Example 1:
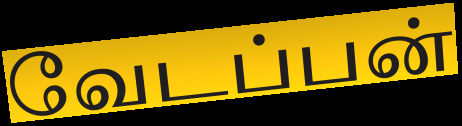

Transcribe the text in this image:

வேடப்பன்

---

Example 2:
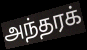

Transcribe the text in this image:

அந்தரக்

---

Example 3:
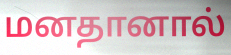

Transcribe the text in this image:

மனதானால்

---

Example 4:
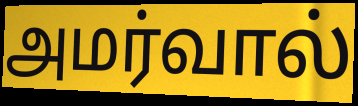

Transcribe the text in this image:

அமர்வால்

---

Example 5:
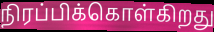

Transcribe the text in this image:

நிரப்பிக்கொள்கிறது